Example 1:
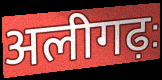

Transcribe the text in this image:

अलीगढ़ः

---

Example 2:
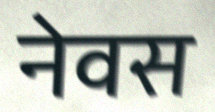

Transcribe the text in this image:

नेवस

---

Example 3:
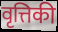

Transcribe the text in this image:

वृत्तिकी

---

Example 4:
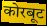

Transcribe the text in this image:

कोरबूट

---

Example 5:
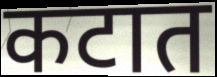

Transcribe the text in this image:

कटात